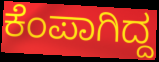
ಕೆಂಪಾಗಿದ್ದ